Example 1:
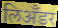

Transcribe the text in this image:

लिअँडर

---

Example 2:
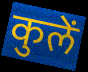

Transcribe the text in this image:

कुलें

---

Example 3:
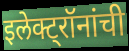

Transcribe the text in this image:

इलेक्ट्रॉनांची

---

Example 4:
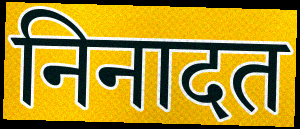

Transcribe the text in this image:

निनादत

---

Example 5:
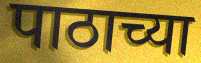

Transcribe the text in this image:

पाठाच्या